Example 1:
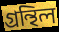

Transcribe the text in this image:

গ্ৰন্থিল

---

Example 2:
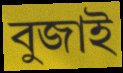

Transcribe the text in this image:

বুজাই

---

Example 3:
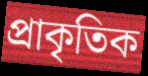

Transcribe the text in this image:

প্ৰাকৃতিক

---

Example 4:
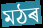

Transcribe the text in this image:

মঠৰ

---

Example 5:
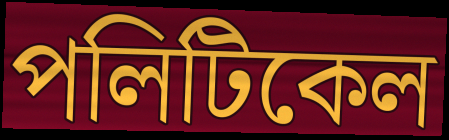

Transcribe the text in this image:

পলিটিকেল